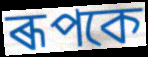
ৰূপকে